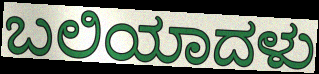
ಬಲಿಯಾದಳು